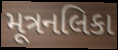
મૂત્રનલિકા